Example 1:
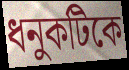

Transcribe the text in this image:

ধনুকটিকে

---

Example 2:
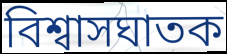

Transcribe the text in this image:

বিশ্বাসঘাতক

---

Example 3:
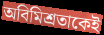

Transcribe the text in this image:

অবিমিশ্রতাকেই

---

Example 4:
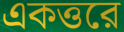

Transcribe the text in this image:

একত্তরে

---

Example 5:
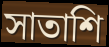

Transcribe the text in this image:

সাতাশি